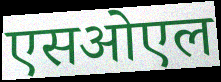
एसओएल